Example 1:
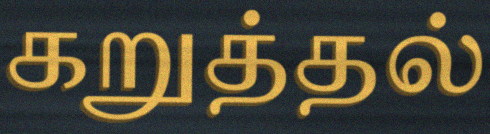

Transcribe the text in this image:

கறுத்தல்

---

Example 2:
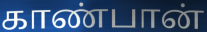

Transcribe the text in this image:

காண்பான்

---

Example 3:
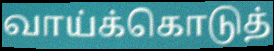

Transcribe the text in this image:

வாய்க்கொடுத்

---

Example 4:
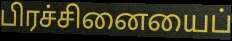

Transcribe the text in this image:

பிரச்சினையைப்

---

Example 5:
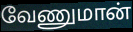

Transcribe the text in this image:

வேணுமான்